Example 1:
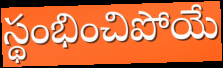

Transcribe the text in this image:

స్థంభించిపోయే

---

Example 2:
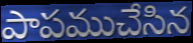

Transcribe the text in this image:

పాపముచేసిన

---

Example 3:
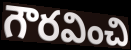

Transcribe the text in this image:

గౌరవించి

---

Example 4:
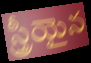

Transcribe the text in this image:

స్త్రీయైన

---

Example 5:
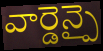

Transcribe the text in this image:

వార్డెన్పై